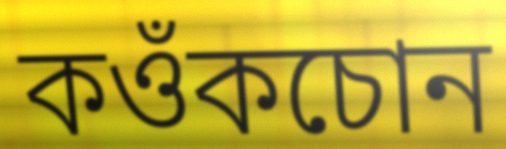
কওঁকচোন